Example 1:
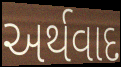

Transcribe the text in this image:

અર્થવાદ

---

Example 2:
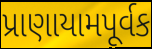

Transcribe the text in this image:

પ્રાણાયામપૂર્વક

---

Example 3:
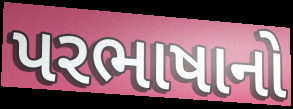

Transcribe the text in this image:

પરભાષાનો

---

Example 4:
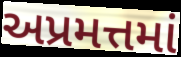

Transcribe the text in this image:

અપ્રમત્તમાં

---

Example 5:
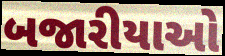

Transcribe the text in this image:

બજારીયાઓ